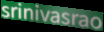
srinivasrao